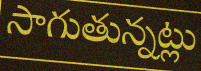
సాగుతున్నట్లు